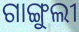
ଗାଙ୍ଗୁଲୀ